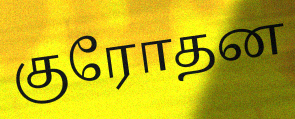
குரோதன